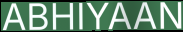
ABHIYAAN